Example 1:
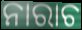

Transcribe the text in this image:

ନାରାଚ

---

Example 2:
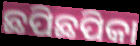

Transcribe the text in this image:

ଛପିଛପିକା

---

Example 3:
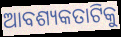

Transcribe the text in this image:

ଆବଶ୍ୟକତାଟିକୁ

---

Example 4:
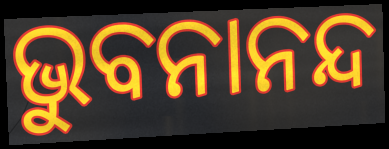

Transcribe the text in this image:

ଭୁବନାନନ୍ଦ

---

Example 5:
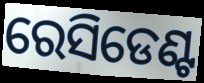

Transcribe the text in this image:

ରେସିଡେଣ୍ଟ